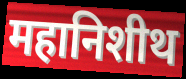
महानिशीथ